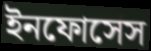
ইনফোসেস